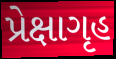
પ્રેક્ષાગૃહ